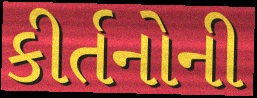
કીર્તનોની